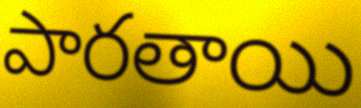
పారతాయి